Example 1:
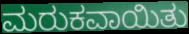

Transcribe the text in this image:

ಮರುಕವಾಯಿತು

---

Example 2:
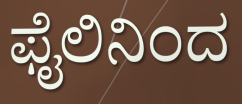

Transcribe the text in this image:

ಫೈಲಿನಿಂದ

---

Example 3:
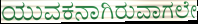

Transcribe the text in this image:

ಯುವಕನಾಗಿರುವಾಗಲೇ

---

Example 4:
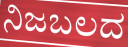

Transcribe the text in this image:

ನಿಜಬಲದ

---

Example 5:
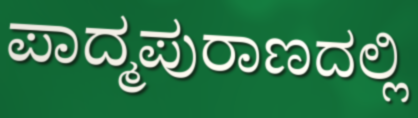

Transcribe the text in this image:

ಪಾದ್ಮಪುರಾಣದಲ್ಲಿ